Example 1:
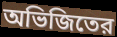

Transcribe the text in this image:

অভিজিতের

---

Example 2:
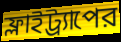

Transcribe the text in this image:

ফ্লাইট্র্যাপের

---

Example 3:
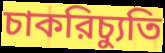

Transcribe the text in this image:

চাকরিচ্যুতি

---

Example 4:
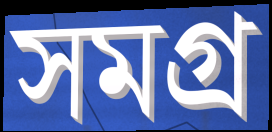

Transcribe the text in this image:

সমগ্র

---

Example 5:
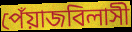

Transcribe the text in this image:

পেঁয়াজবিলাসী